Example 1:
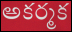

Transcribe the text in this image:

అకర్మక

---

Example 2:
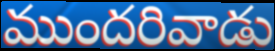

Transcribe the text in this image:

ముందరివాడు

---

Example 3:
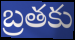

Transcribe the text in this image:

బ్రతకు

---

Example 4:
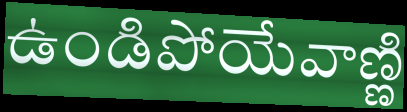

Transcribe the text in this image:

ఉండిపోయేవాణ్ణి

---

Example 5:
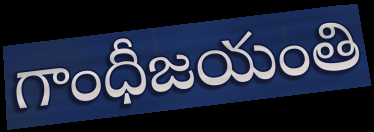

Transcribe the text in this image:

గాంధీజయంతి